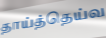
தாய்த்தெய்வ